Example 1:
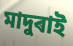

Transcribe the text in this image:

মাদুৰাই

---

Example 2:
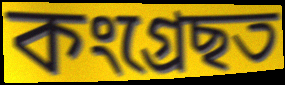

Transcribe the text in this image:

কংগ্ৰেছত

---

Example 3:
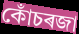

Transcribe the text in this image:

কোঁচৰজা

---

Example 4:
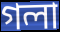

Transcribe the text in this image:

গলা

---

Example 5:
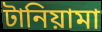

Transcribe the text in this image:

টানিয়ামা